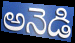
అనెడి